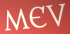
MEV